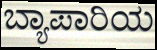
ಬ್ಯಾಪಾರಿಯ